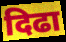
दिढा